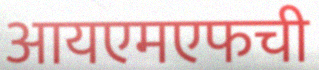
आयएमएफची